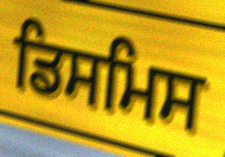
ਡਿਸਮਿਸ